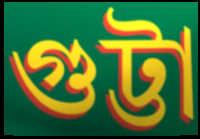
গুট্টা